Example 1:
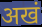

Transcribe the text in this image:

अखं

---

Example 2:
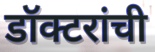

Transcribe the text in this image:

डॉक्टरांची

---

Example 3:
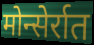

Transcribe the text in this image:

मोन्सेर्रात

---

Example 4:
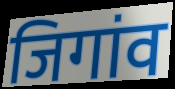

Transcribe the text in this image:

जिगांव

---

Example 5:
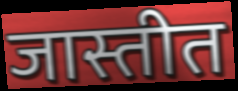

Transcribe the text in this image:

जास्तीत